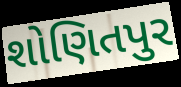
શોણિતપુર